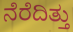
ನೆರೆದಿತ್ತು